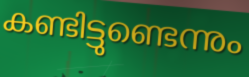
കണ്ടിട്ടുണ്ടെന്നും